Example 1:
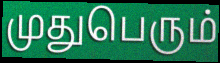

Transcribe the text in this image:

முதுபெரும்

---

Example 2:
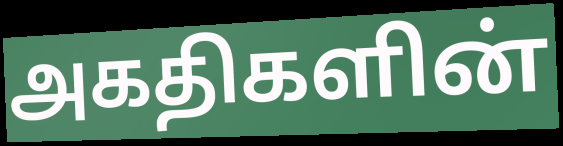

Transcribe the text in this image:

அகதிகளின்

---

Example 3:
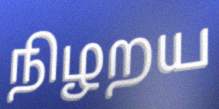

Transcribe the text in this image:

நிழறய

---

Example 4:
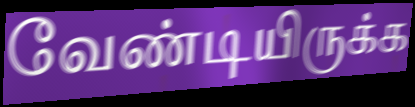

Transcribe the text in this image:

வேண்டியிருக்க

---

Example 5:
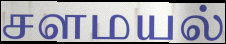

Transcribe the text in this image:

சளமயல்